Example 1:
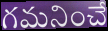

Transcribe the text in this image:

గమనించే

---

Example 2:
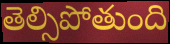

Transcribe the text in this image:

తెల్సిపోతుంది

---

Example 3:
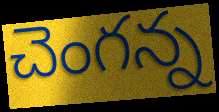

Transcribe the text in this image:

చెంగన్న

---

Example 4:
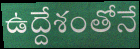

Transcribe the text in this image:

ఉద్దేశంతోనే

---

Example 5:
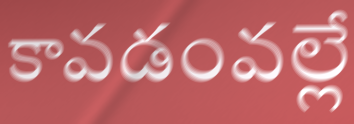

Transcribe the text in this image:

కావడంవల్లే